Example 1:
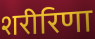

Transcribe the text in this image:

शरीरिणा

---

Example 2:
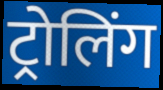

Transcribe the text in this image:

ट्रोलिंग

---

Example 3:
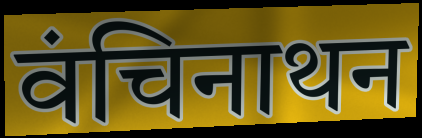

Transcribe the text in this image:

वंचिनाथन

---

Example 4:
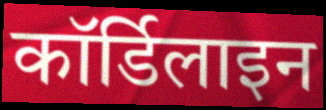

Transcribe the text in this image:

कॉर्डिलाइन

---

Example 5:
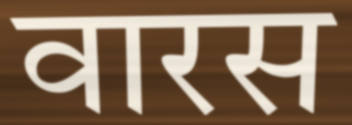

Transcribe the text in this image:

वारस